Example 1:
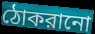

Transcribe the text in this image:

ঠোকরানো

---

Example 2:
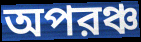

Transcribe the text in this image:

অপরঞ্চ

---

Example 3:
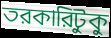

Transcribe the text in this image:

তরকারিটুকু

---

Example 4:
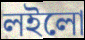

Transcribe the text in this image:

লইলো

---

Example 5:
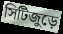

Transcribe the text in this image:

সিটিজুড়ে